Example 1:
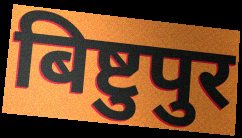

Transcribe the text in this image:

बिष्टुपुर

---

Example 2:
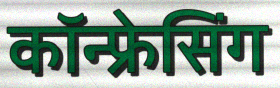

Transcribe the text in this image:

कॉन्फ्रेसिंग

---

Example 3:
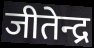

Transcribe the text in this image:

जीतेन्द्र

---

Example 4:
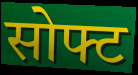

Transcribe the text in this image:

सोफ्ट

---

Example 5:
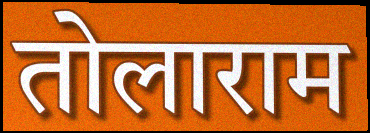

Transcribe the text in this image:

तोलाराम